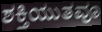
ಶಕ್ತಿಯುತವೂ